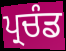
ਪ੍ਰਚੰਡ